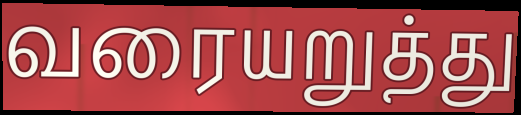
வரையறுத்து